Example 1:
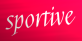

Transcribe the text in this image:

sportive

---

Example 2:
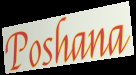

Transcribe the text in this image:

Poshana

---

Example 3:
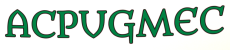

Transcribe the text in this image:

ACPUGMEC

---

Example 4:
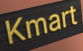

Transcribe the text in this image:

Kmart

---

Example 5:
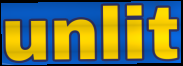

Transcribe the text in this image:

unlit